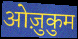
ओज़ुकुम